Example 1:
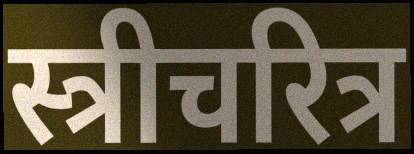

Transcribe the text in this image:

स्त्रीचरित्र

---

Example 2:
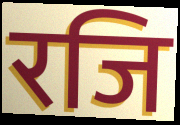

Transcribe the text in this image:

रजि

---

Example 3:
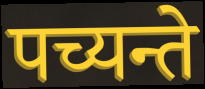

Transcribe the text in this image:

पच्यन्ते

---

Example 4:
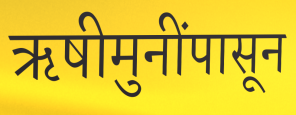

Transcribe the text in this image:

ऋषीमुनींपासून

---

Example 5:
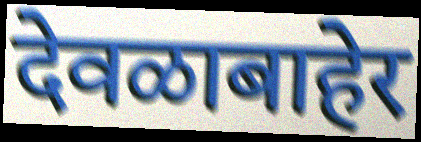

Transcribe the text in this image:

देवळाबाहेर